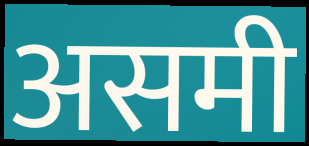
असमी